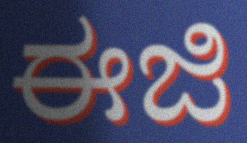
ಈಜಿ